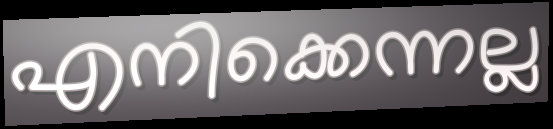
എനിക്കെന്നല്ല